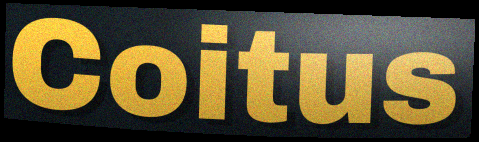
Coitus